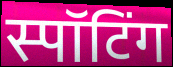
स्पॉटिंग